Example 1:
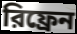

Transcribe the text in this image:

রিফ্রেন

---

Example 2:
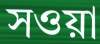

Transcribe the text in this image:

সওয়া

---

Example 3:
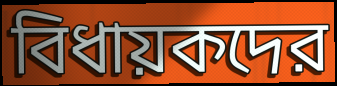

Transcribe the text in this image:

বিধায়কদের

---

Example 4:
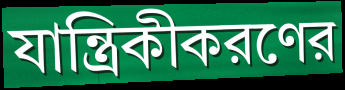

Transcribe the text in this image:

যান্ত্রিকীকরণের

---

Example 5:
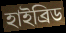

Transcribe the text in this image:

হাইব্রিড